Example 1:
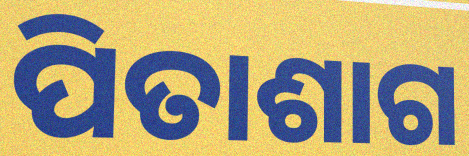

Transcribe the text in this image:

ପିତାଶାଗ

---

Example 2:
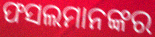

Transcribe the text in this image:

ଫସଲମାନଙ୍କର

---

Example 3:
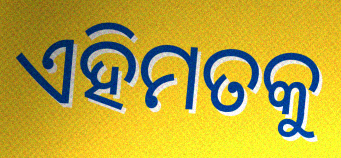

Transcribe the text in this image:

ଏହିମତକୁ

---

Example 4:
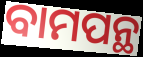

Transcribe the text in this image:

ବାମପନ୍ଥ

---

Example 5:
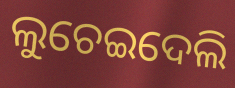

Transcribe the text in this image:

ଲୁଚେଇଦେଲି